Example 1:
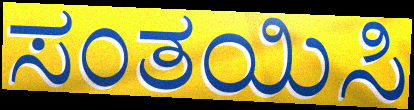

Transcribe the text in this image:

ಸಂತಯಿಸಿ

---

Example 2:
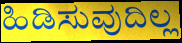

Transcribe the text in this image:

ಹಿಡಿಸುವುದಿಲ್ಲ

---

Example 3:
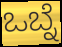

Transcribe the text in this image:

ಒಬ್ನೆ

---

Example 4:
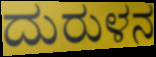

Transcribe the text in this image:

ದುರುಳನ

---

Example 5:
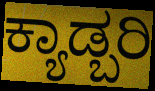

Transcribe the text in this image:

ಕ್ಯಾಡ್ಬರಿ